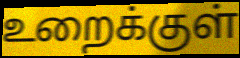
உறைக்குள்